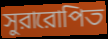
সুরারোপিত